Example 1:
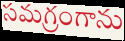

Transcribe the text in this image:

సమగ్రంగాను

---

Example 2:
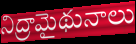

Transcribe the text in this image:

నిద్రామైథునాలు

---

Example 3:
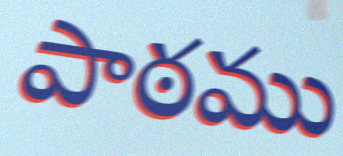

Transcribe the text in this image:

పాఠము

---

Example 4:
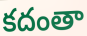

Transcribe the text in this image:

కదంతా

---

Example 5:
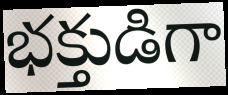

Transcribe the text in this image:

భక్తుడిగా